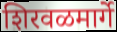
शिरवळमार्गे